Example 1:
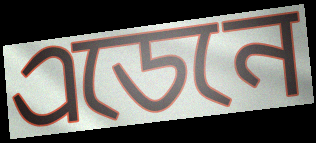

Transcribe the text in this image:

এডেনে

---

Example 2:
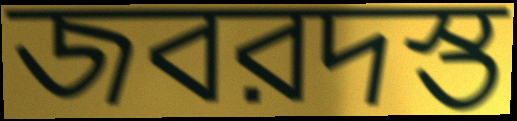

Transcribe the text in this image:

জবরদস্ত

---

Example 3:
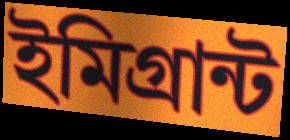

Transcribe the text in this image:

ইমিগ্রান্ট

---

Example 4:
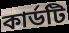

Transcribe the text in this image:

কার্ডটি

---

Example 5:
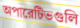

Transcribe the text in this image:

অপারেটিভগুলি